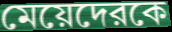
মেয়েদেরকে